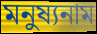
মনুষ্যনাম